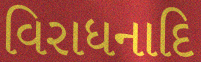
વિરાધનાદિ